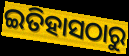
ଇତିହାସଠାରୁ